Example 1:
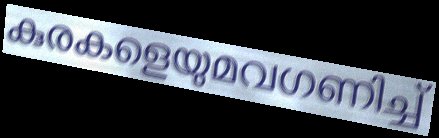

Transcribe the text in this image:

കുരകളെയുമവഗണിച്ച്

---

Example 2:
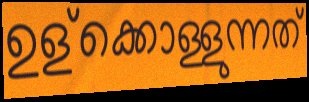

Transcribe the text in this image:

ഉള്ക്കൊള്ളുന്നത്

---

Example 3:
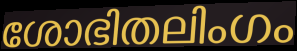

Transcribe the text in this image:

ശോഭിതലിംഗം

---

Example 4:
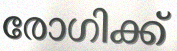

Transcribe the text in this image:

രോഗിക്ക്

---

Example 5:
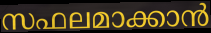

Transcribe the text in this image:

സഫലമാക്കാൻ